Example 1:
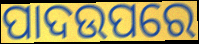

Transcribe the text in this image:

ପାଦଉପରେ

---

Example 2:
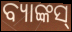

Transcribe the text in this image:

ବ୍ୟାଙ୍କସ୍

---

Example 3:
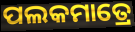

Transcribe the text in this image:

ପଲକମାତ୍ରେ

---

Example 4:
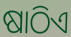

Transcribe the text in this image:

ଷାଠିଏ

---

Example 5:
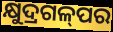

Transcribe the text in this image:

କ୍ଷୁଦ୍ରଗଳ୍‌ପର